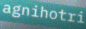
agnihotri